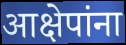
आक्षेपांना